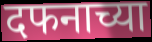
दफनाच्या